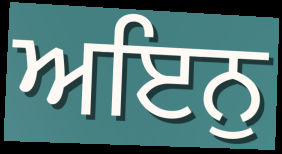
ਅਇਨੁ